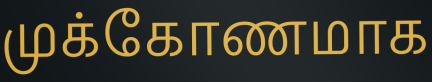
முக்கோணமாக